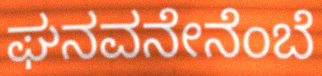
ಘನವನೇನೆಂಬೆ